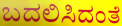
ಬದಲಿಸಿದಂತೆ